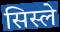
सिस्ले